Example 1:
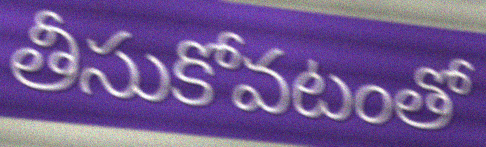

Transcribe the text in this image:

తీసుకోవటంతో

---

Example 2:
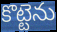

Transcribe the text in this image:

కొట్టెను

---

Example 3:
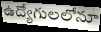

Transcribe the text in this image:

ఉద్యోగులలోనూ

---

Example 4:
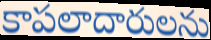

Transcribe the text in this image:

కాపలాదారులను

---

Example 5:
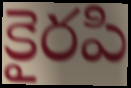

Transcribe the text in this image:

కైరపి